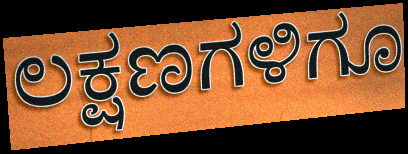
ಲಕ್ಷಣಗಳಿಗೂ